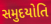
સમુદયોતિ